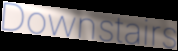
Downstairs